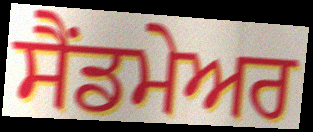
ਸੈਂਡਮੇਅਰ